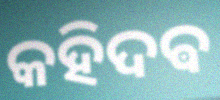
କହିଦଵ